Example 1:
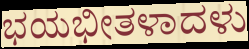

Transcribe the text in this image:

ಭಯಭೀತಳಾದಳು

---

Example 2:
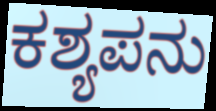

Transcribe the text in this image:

ಕಶ್ಯಪನು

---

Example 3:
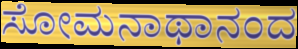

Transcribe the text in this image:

ಸೋಮನಾಥಾನಂದ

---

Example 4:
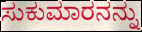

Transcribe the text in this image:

ಸುಕುಮಾರನನ್ನು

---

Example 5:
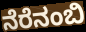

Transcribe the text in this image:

ನೆರೆನಂಬಿ